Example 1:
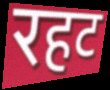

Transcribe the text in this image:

रहट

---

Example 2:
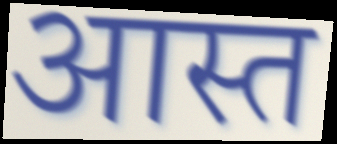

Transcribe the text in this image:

आस्त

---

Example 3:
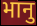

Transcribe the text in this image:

भानु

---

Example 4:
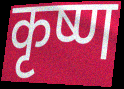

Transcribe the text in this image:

कृष्ण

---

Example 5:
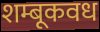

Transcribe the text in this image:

शम्बूकवध